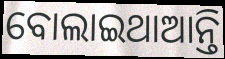
ବୋଲାଇଥାଆନ୍ତି